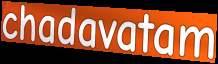
chadavatam